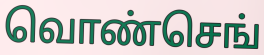
வொண்செங்